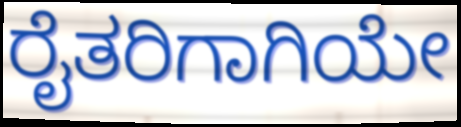
ರೈತರಿಗಾಗಿಯೇ